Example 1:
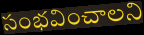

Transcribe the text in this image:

సంభవించాలని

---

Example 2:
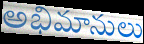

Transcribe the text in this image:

అభిమానులు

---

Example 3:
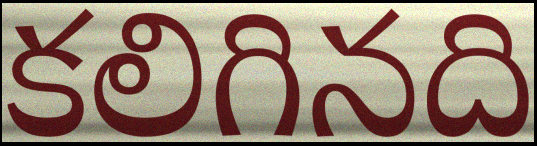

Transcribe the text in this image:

కలిగినది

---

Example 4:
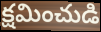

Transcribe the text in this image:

క్షమించుడి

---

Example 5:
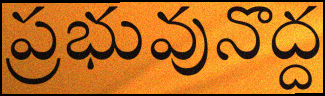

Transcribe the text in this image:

ప్రభువునొద్ద